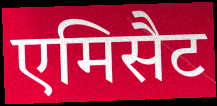
एमिसैट